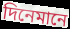
দিনেমানে